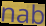
nab